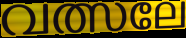
വത്സലേ